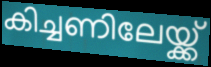
കിച്ചണിലേയ്ക്ക്